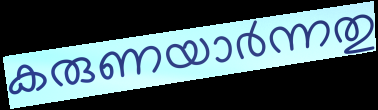
കരുണയാർന്നതു